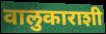
वालुकाराशी